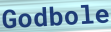
Godbole